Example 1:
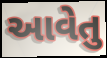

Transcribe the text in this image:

આવેતુ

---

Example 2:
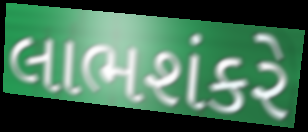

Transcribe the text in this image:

લાભશંકરે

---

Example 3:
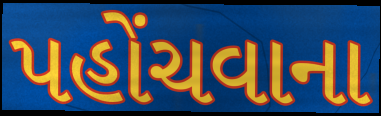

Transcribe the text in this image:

પહોંચવાના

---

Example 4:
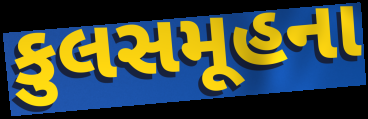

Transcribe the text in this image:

કુલસમૂહના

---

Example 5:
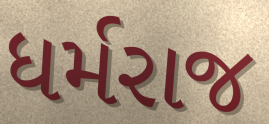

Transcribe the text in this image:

ધર્મરાજ